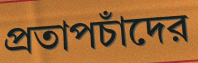
প্রতাপচাঁদের